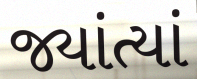
જ્યાંત્યાં